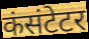
कंसंटेटर